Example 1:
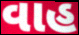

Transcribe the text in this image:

વાહ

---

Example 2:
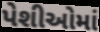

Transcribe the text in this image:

પેશીઓમાં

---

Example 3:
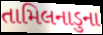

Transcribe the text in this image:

તામિલનાડુના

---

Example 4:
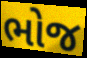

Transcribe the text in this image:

ભોજ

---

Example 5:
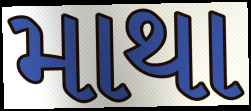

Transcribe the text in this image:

માથા